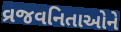
વ્રજવનિતાઓને